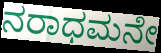
ನರಾಧಮನೇ